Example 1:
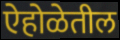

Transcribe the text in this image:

ऐहोळेतील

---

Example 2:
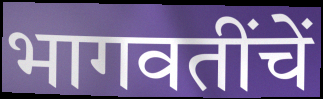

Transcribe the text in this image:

भागवतींचें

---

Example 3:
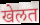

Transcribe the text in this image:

खेलत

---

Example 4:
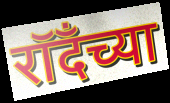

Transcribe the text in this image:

रॉदँच्या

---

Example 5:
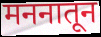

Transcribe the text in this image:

मननातून